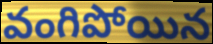
వంగిపోయిన